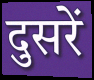
दुसरें